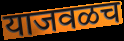
याजवळच